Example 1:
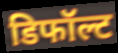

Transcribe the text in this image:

डिफॉल्ट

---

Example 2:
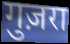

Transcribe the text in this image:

गुज़रा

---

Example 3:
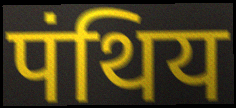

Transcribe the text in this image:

पंथिय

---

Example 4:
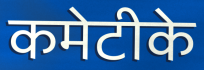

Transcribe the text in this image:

कमेटीके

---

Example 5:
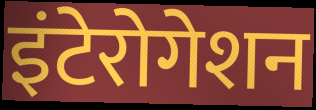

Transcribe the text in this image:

इंटेरोगेशन